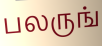
பலருங்